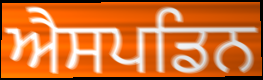
ਐਸਪਡਿਨ